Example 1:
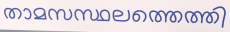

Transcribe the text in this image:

താമസസ്ഥലത്തെത്തി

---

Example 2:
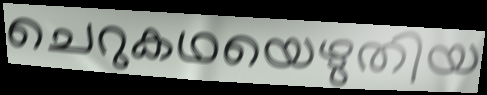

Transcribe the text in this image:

ചെറുകഥയെഴുതിയ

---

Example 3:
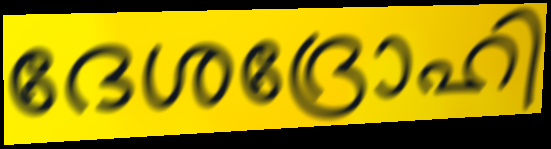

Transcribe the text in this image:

ദേശദ്രോഹി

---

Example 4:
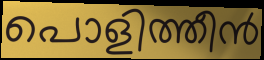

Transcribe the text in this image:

പൊളിത്തീൻ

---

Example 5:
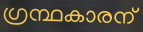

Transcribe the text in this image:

ഗ്രന്ഥകാരന്